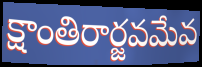
క్షాంతిరార్జవమేవ